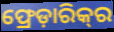
ଫ୍ରେଡ଼ାରିକ୍‍ର